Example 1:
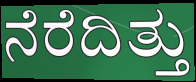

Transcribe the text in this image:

ನೆರೆದಿತ್ತು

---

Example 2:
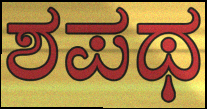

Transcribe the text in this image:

ಶಪಥ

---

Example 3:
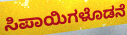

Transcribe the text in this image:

ಸಿಪಾಯಿಗಳೊಡನೆ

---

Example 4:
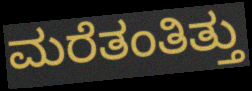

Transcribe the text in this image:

ಮರೆತಂತಿತ್ತು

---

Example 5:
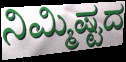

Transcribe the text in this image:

ನಿಮ್ಮಿಷ್ಟದ